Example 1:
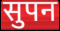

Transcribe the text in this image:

सुपन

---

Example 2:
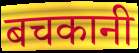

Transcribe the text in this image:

बचकानी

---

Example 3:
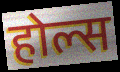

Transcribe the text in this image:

होल्स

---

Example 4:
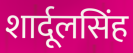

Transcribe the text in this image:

शार्दूलसिंह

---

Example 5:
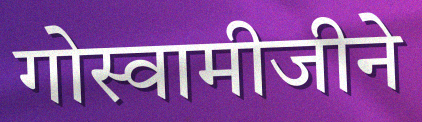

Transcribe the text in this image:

गोस्वामीजीने